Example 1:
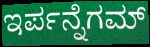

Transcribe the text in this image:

ಇರ್ಪನ್ನೆಗಮ್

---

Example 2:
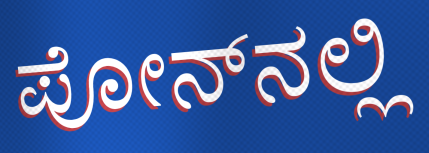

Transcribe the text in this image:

ಪೋನ್‍ನಲ್ಲಿ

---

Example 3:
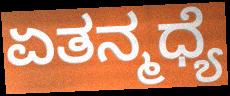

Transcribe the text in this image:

ಏತನ್ಮಧ್ಯೆ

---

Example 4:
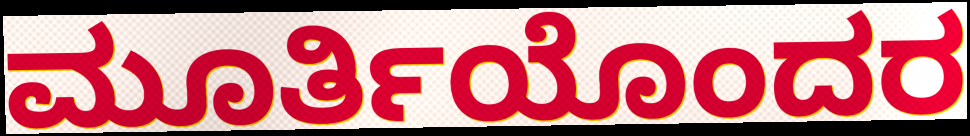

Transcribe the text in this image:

ಮೂರ್ತಿಯೊಂದರ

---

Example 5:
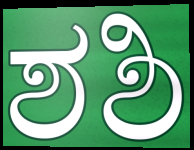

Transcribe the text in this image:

ಶಶಿ